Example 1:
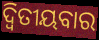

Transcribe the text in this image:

ଦ୍ୱିତୀୟବାର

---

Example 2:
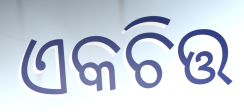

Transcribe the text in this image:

ଏକଚିତ୍ତ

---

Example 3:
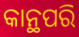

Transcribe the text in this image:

କାନ୍ଥପରି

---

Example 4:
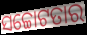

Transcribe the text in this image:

ସଚ୍ଚୋଟତାର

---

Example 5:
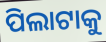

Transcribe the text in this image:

ପିଲାଟାକୁ